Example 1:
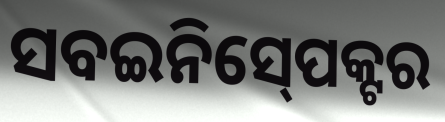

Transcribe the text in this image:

ସବଇନିସ୍‍ପେକ୍ଟର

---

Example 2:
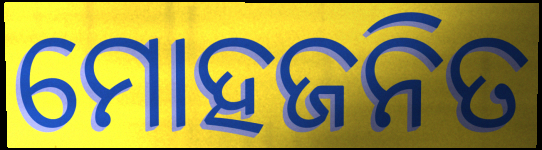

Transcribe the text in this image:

ମୋହଜନିତ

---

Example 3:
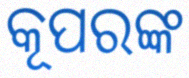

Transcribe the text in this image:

କୂପରଙ୍କ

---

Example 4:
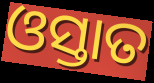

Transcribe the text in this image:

ଓସ୍ତାତ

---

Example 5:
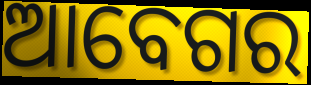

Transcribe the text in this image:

ଆବେଗର